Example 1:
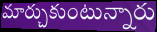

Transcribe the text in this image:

మార్చుకుంటున్నారు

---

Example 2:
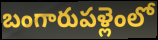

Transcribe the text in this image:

బంగారుపళ్లెంలో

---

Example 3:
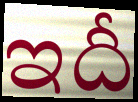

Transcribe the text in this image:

ఇదీ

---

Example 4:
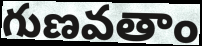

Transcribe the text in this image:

గుణవతాం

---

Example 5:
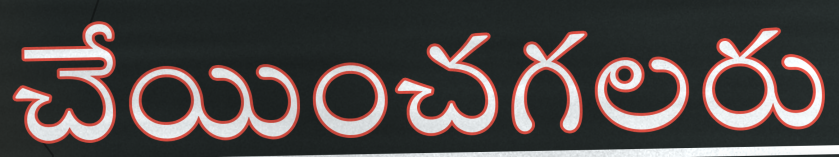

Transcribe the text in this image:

చేయించగలరు